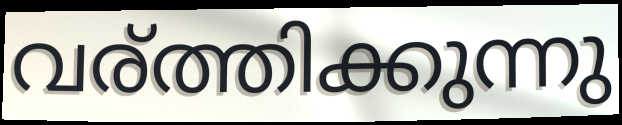
വര്ത്തിക്കുന്നു